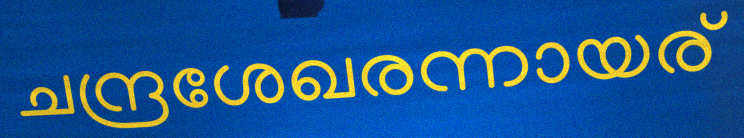
ചന്ദ്രശേഖരന്നായര്